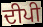
ਦੀਪੀ